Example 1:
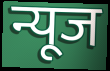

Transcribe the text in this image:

न्‍यूज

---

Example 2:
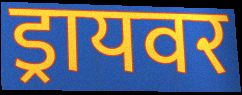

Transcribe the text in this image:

ड्रायवर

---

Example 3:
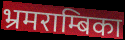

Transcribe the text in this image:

भ्रमराम्बिका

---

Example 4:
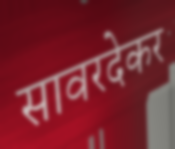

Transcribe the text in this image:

सावरदेकर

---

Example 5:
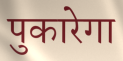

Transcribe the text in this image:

पुकारेगा